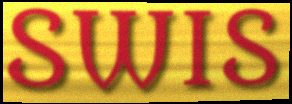
SWIS